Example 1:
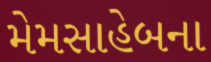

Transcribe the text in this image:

મેમસાહેબના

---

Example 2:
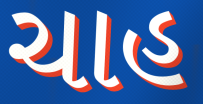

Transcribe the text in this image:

ચાહ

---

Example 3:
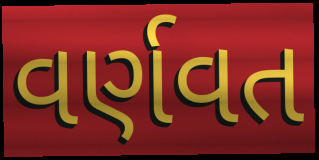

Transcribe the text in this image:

વર્ણવત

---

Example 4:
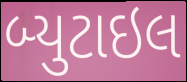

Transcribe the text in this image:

બ્યુટાઇલ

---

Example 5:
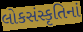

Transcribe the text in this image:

લોકસંસ્કૃતિનાં